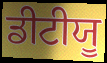
ਡੀਟੀਯੂ